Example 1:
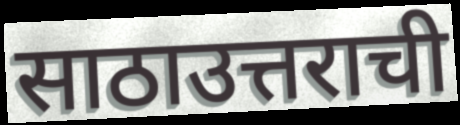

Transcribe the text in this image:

साठाउत्तराची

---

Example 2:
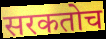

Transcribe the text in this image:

सरकतोच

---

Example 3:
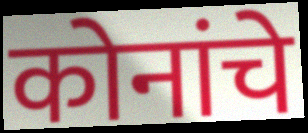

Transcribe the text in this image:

कोनांचे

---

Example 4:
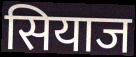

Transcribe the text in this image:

सियाज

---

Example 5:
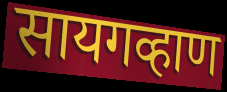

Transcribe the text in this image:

सायगव्हाण